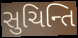
સુચિન્તિ